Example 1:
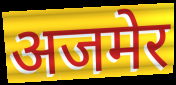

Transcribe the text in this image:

अजमेर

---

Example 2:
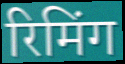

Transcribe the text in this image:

रिमिंग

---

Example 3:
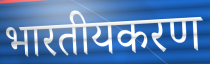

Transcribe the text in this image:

भारतीयकरण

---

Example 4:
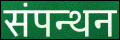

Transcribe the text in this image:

संपन्थन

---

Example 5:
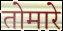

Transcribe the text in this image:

तोमारे